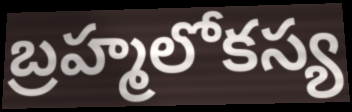
బ్రహ్మలోకస్య